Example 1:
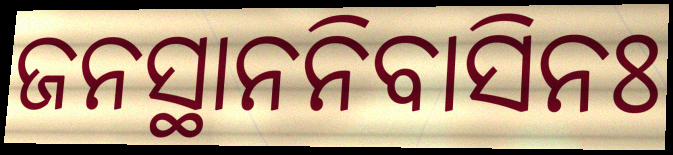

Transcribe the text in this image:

ଜନସ୍ଥାନନିବାସିନଃ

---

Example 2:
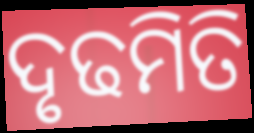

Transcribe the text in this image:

ଦୃଢମିତି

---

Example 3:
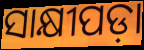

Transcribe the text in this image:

ସାକ୍ଷୀପଡ଼ା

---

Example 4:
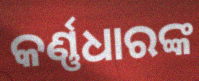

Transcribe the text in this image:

କର୍ଣ୍ଣଧାରଙ୍କ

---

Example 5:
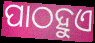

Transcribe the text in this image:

ପାଠହୁଏ